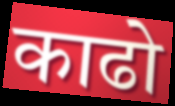
काढो